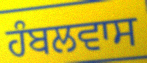
ਹੰਬਲਵਾਸ